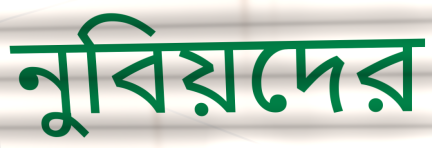
নুবিয়দের